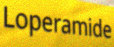
Loperamide